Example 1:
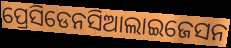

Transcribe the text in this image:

ପ୍ରେସିଡେନସିଆଲାଇଜେସନ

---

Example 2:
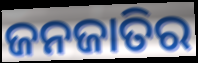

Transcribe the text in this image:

ଜନଜାତିର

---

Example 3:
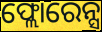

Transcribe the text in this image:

ଫ୍ଲୋରେନ୍ସ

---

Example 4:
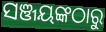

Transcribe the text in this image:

ସଞ୍ଜୟଙ୍କଠାରୁ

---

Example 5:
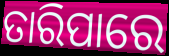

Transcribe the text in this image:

ତାରିପାରେ